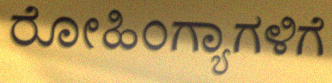
ರೋಹಿಂಗ್ಯಾಗಳಿಗೆ